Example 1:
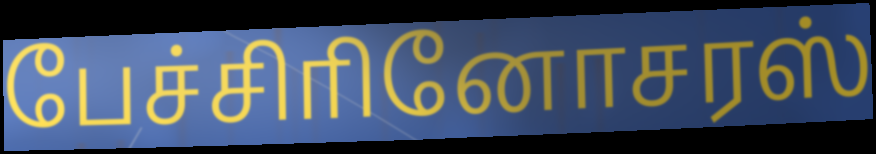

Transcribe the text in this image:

பேச்சிரினோசரஸ்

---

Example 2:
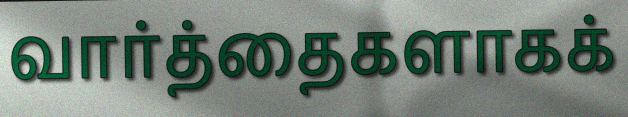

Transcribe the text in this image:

வார்த்தைகளாகக்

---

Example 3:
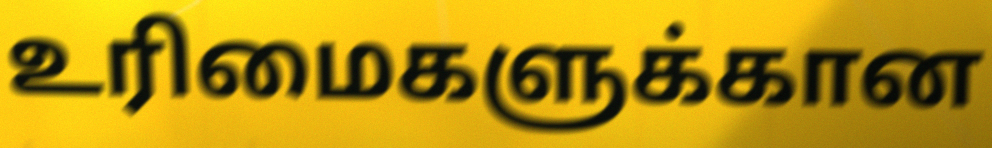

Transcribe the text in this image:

உரிமைகளுக்கான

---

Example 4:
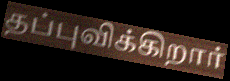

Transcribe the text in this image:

தப்புவிக்கிறார்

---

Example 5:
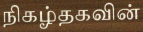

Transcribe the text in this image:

நிகழ்தகவின்